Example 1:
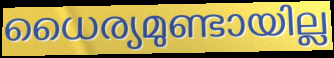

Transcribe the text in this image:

ധൈര്യമുണ്ടായില്ല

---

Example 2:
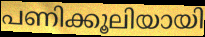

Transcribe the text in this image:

പണിക്കൂലിയായി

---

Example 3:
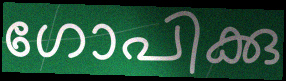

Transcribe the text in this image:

ഗോപിക്കു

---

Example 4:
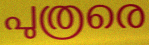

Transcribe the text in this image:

പുത്രരെ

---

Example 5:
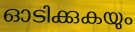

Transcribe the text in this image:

ഓടിക്കുകയും